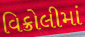
વિક્રોલીમાં